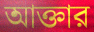
আক্তার